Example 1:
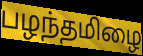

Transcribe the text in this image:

பழந்தமிழை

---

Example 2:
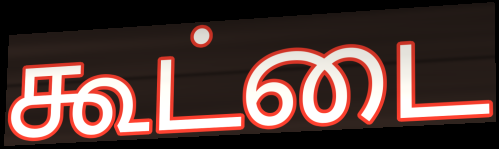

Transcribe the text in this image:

கூட்டை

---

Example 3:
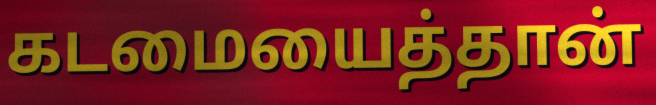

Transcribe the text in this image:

கடமையைத்தான்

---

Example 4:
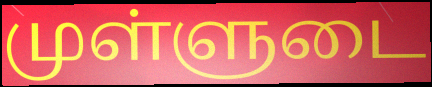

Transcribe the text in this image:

முள்ளுடை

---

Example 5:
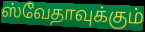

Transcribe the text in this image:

ஸ்வேதாவுக்கும்